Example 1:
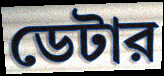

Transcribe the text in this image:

ডেটার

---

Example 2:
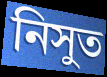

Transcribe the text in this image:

নিসুত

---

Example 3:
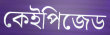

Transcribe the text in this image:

কেইপিজেড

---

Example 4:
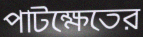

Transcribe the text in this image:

পাটক্ষেতের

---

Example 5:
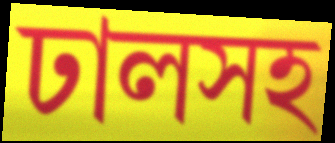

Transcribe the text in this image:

ঢালসহ